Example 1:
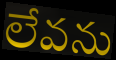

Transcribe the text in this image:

లేవను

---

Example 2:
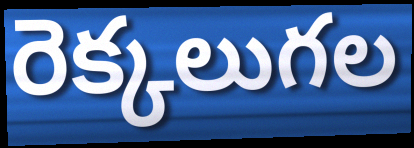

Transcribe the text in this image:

రెక్కలుగల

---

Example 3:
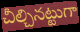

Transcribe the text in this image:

చీల్చినట్టుగా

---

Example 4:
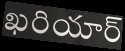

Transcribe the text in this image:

ఖరియార్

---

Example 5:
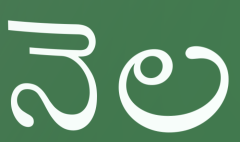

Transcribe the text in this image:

నెల